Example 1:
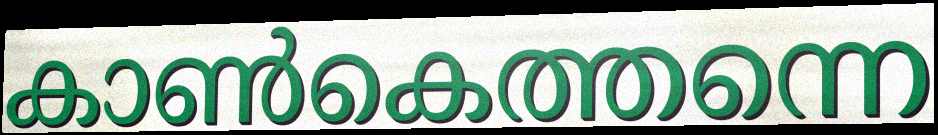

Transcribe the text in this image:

കാൺകെത്തന്നെ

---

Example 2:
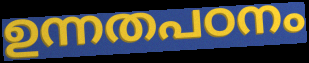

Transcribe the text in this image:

ഉന്നതപഠനം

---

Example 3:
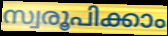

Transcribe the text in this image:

സ്വരൂപിക്കാം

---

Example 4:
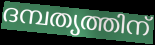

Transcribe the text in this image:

ദമ്പത്യത്തിന്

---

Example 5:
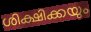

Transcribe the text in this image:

ശിക്ഷിക്കയും